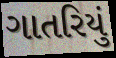
ગાતરિયું